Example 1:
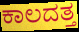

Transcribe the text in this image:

ಕಾಲದತ್ತ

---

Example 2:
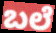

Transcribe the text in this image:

ಬಲೆ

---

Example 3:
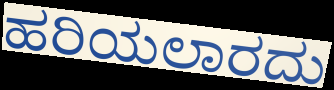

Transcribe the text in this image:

ಹರಿಯಲಾರದು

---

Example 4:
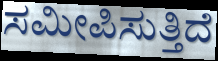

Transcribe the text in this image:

ಸಮೀಪಿಸುತ್ತಿದೆ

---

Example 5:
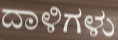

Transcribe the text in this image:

ದಾಳಿಗಳು